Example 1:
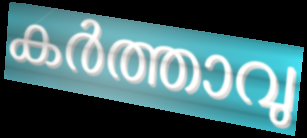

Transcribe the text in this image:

കർത്താവു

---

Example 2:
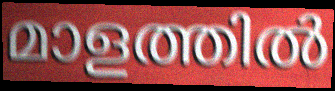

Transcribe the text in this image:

മാളത്തിൽ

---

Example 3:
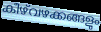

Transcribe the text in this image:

കീഴ്‌വഴക്കങ്ങളും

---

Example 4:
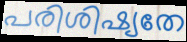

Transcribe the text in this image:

പരിശിഷ്യതേ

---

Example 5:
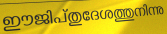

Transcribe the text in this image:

ഈജിപ്തുദേശത്തുനിന്നു